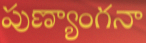
పుణ్యాంగనా